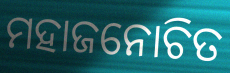
ମହାଜନୋଚିତ